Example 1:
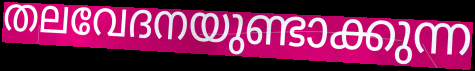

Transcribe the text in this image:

തലവേദനയുണ്ടാക്കുന്ന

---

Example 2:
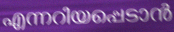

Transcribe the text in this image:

എന്നറിയപ്പെടാൻ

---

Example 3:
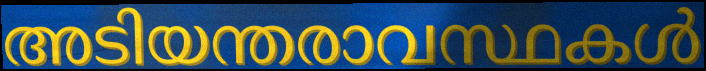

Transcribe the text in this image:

അടിയന്തരാവസ്ഥകൾ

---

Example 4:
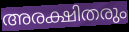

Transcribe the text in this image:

അരക്ഷിതരും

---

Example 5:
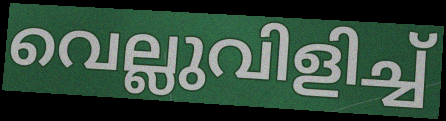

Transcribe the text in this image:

വെല്ലുവിളിച്ച്